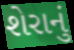
શેરાનું